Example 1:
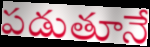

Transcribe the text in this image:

పడుతూనే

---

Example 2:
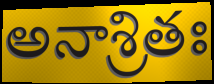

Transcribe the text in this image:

అనాశ్రితః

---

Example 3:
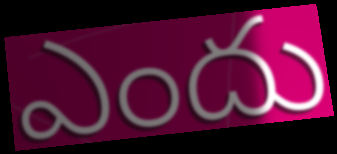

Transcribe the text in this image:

ఎందు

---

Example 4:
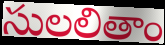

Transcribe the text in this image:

సులలితాం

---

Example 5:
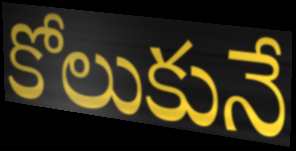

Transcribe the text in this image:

కోలుకునే